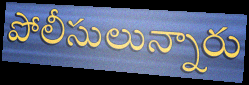
పోలీసులున్నారు